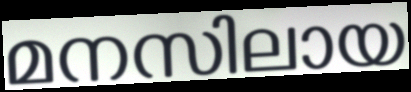
മനസിലായ